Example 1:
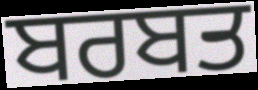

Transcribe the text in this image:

ਬਰਬਤ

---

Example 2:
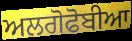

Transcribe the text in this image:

ਅਲਗੋਫੋਬੀਆ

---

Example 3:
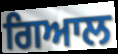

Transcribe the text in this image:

ਗਿਆਲ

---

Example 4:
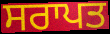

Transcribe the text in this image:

ਸਰਾਪਤ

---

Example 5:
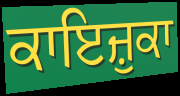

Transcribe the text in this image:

ਕਾਇਜ਼ੁਕਾ